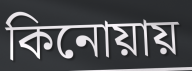
কিনোয়ায়